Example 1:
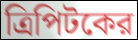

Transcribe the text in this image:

ত্রিপিটকের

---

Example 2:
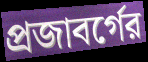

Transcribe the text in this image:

প্রজাবর্গের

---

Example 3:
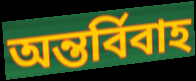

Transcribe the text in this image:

অন্তর্বিবাহ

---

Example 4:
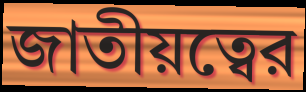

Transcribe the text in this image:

জাতীয়ত্বের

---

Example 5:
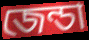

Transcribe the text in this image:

জেন্ডা